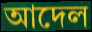
আদেল